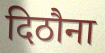
दिठौना